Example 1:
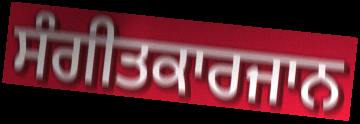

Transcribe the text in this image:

ਸੰਗੀਤਕਾਰਜਾਨ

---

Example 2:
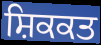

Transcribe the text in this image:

ਸ਼ਿਕਕਤ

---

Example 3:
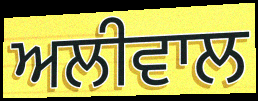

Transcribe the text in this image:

ਅਲੀਵਾਲ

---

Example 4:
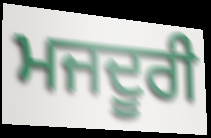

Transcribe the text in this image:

ਮਜਦੂਰੀ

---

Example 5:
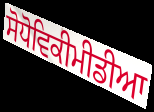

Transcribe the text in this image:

ਸੋਧੋਵਿਕੀਮੀਡੀਆ